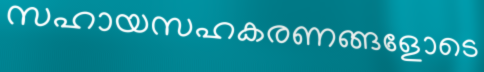
സഹായസഹകരണങ്ങളോടെ